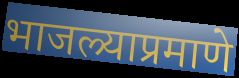
भाजल्याप्रमाणे